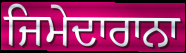
ਜਿਮੇਦਾਰਾਨਾ